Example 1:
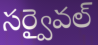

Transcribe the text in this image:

సర్వైవల్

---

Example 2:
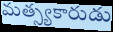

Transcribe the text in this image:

మత్స్యకారుడు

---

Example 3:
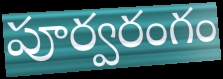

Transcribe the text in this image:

పూర్వరంగం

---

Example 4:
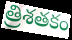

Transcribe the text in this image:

త్రిశతకం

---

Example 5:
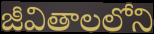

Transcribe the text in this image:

జీవితాలలోని